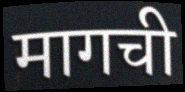
मागची